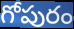
గోపురం